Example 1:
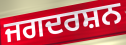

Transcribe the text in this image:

ਜਗਦਰਸ਼ਨ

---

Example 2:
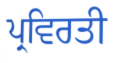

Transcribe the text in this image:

ਪ੍ਰਵਿਰਤੀ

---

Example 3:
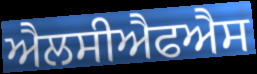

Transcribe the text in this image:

ਐਲਸੀਐਫਐਸ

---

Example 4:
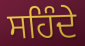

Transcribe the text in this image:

ਸਹਿੰਦੇ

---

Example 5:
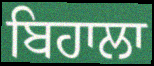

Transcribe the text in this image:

ਬਿਹਾਲਾ